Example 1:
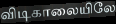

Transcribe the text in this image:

விடிகாலையிலே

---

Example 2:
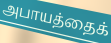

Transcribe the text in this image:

அபாயத்தைக்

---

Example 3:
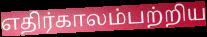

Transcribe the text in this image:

எதிர்காலம்பற்றிய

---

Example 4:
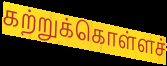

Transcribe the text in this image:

கற்றுக்கொள்ளச்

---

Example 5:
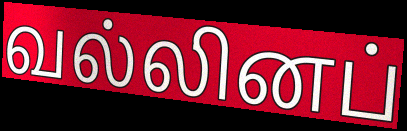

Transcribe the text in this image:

வல்லினப்